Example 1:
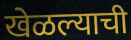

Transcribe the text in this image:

खेळल्याची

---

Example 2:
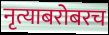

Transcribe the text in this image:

नृत्याबरोबरच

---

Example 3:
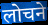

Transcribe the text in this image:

लोचने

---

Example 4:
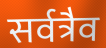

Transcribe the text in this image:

सर्वत्रैव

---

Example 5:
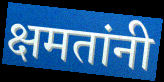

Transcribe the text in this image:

क्षमतांनी